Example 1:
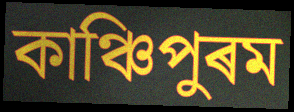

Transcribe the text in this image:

কাঞ্চিপুৰম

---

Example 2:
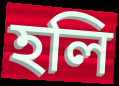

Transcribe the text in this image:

হলি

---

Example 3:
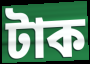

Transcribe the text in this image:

টাক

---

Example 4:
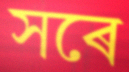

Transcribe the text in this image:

সৰে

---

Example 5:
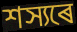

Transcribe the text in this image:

শস্যৰে